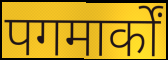
पगमार्कों